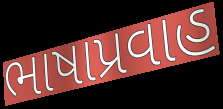
ભાષાપ્રવાહ